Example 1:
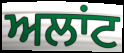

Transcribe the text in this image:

ਅਲਾਂਟ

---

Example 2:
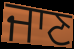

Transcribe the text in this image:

ਜਾਣ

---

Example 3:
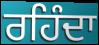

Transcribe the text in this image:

ਰਹਿੰਦਾ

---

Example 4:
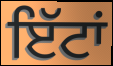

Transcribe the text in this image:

ਇੱਟਾਂ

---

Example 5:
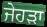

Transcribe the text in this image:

ਜੇਹੜਾ